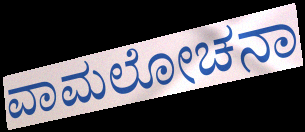
ವಾಮಲೋಚನಾ